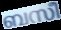
ബസീ